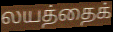
லயத்தைக்